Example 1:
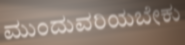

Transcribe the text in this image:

ಮುಂದುವರಿಯಬೇಕು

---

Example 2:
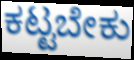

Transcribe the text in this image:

ಕಟ್ಟಬೇಕು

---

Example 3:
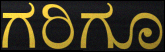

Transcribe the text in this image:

ಗರಿಗೂ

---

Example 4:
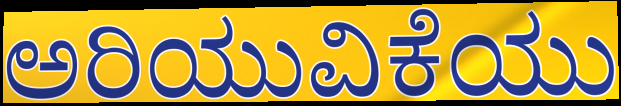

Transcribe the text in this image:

ಅರಿಯುವಿಕೆಯು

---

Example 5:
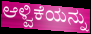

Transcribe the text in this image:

ಆಳ್ವಿಕೆಯನ್ನು